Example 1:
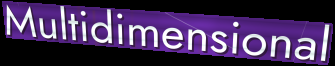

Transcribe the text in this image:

Multidimensional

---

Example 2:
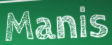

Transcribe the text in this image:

Manis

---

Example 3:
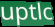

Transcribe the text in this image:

uptlc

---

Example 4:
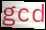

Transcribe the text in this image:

gcd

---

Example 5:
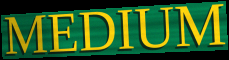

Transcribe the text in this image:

MEDIUM